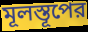
মূলস্তূপের